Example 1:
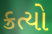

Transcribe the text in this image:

ક્રત્યો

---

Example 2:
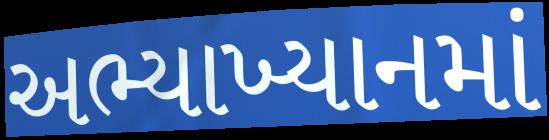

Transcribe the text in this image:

અભ્યાખ્યાનમાં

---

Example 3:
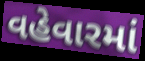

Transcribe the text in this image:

વહેવારમાં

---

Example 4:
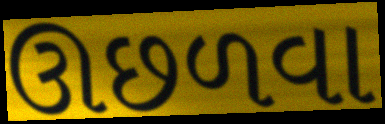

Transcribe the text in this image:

ઊછળવા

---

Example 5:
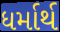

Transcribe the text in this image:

ધર્માર્થ